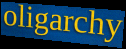
oligarchy